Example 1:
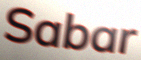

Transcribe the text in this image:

Sabar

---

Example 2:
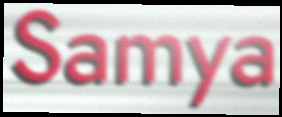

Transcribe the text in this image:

Samya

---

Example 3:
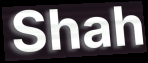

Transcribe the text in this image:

Shah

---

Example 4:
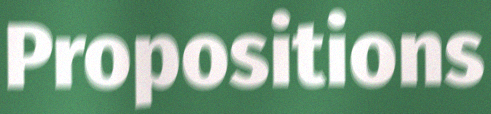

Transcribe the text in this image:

Propositions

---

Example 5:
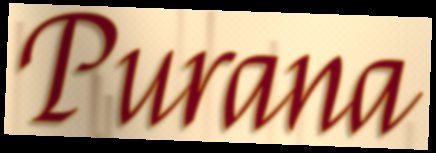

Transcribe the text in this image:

Purana